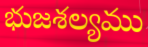
భుజశల్యము